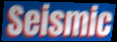
Seismic